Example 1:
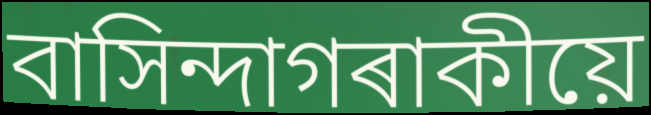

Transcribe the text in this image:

বাসিন্দাগৰাকীয়ে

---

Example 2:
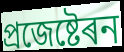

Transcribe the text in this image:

প্ৰজেষ্টেৰন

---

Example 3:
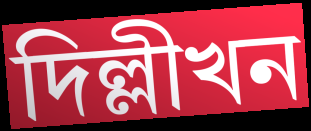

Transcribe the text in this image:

দিল্লীখন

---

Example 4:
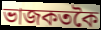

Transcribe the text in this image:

ভাজকতকৈ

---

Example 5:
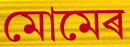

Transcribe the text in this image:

মোমেৰ